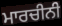
ਮਾਰਚੀਨੀ